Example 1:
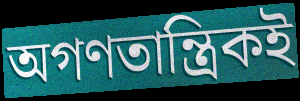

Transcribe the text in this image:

অগণতান্ত্রিকই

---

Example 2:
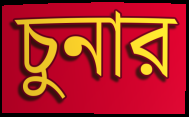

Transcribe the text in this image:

চুনার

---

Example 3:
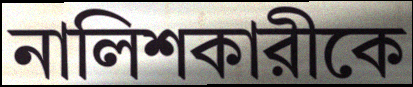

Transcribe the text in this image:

নালিশকারীকে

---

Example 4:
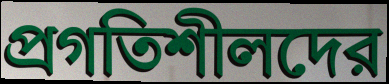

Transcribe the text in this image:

প্রগতিশীলদের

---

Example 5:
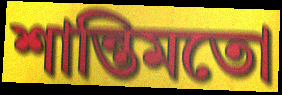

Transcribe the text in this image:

শান্তিমতো